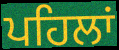
ਪਹਿਲਾਂ